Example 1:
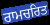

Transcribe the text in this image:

ਰਾਮਚਰਿਤ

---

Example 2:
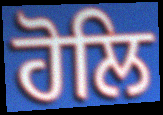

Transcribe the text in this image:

ਹੋਲਿ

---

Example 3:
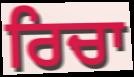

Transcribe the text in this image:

ਰਿਚਾ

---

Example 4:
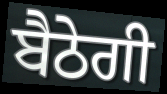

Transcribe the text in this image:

ਬੈਠੇਗੀ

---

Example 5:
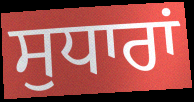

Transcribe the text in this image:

ਸੁਧਾਰਾਂ